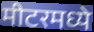
मीटरमध्ये